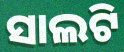
ସାଲଟି